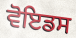
ਵੋਇਡਸ